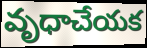
వృధాచేయక